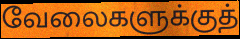
வேலைகளுக்குத்